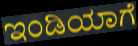
ಇಂಡಿಯಾಗೆ